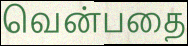
வென்பதை